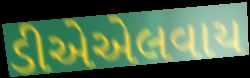
ડીએએલવાય